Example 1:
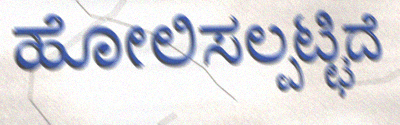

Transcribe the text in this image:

ಹೋಲಿಸಲ್ಪಟ್ಟಿದೆ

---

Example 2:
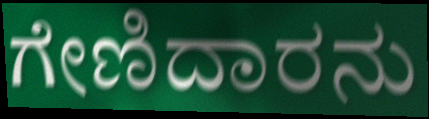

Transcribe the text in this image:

ಗೇಣಿದಾರನು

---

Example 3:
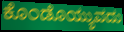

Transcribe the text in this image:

ಕೊಂಡೊಯ್ಯುವದು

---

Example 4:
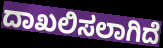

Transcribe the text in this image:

ದಾಖಲಿಸಲಾಗಿದೆ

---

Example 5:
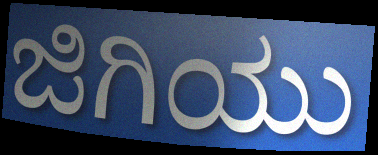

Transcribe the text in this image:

ಜಿಗಿಯು